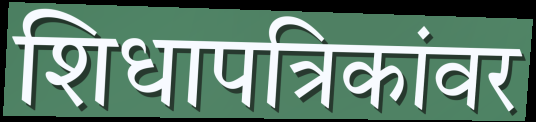
शिधापत्रिकांवर